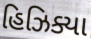
હિઝિક્યા